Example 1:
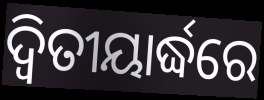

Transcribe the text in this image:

ଦ୍ୱିତୀୟାର୍ଦ୍ଧରେ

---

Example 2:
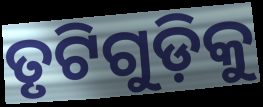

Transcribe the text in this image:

ତୃଟିଗୁଡ଼ିକୁ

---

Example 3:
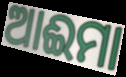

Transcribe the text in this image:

ଆଈମା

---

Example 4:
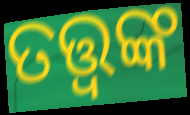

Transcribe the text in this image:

ତତ୍ତ୍ବଙ୍କ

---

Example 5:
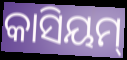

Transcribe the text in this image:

କାସିୟମ୍